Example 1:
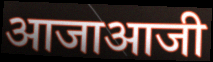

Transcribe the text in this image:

आजाआजी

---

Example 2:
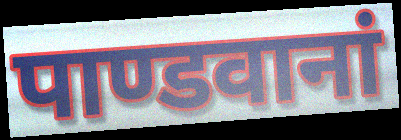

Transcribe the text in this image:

पाण्डवानां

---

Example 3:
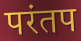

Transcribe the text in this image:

परंतप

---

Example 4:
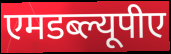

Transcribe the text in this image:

एमडब्ल्यूपीए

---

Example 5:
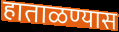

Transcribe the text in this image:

हाताळण्यास